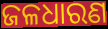
ଜଳଧାରଣ